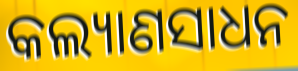
କଲ୍ୟାଣସାଧନ